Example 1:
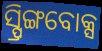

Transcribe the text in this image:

ସ୍ପ୍ରିଙ୍ଗବୋକ୍ସ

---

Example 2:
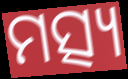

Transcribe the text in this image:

ମତ୍ସ୍ୟ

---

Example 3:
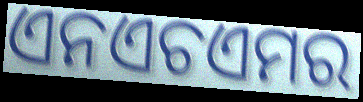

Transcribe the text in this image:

ଏନଏଚଏମର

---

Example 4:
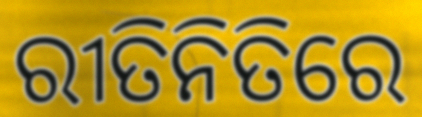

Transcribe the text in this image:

ରୀତିନିତିରେ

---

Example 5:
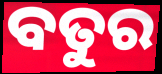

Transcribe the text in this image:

ବତୁର